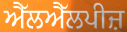
ਐੱਲਐੱਲਪੀਜ਼